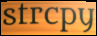
strcpy